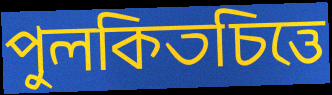
পুলকিতচিত্তে